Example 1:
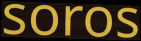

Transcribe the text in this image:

soros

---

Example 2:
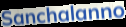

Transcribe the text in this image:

Sanchalanno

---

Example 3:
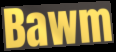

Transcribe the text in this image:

Bawm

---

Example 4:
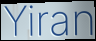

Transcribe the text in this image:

Yiran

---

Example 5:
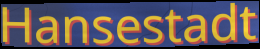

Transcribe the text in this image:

Hansestadt